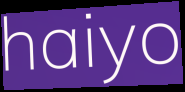
haiyo